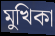
মুখিকা